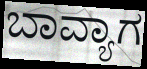
ಬಾವ್ಯಾಗ